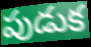
పుడుక